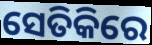
ସେତିକିରେ